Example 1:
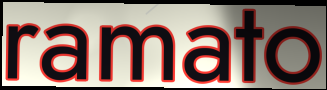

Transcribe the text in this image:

ramato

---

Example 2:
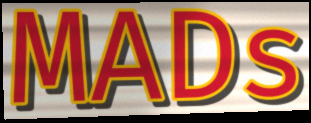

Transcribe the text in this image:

MADs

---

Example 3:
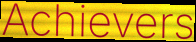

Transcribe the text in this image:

Achievers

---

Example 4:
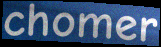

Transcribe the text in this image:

chomer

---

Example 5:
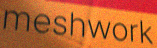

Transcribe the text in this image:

meshwork